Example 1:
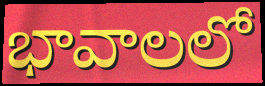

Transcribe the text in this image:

భావాలలో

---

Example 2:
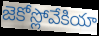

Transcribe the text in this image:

జెకోస్లోవేకియా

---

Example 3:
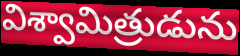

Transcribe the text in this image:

విశ్వామిత్రుడును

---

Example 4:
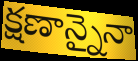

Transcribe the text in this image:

క్షణాన్నైనా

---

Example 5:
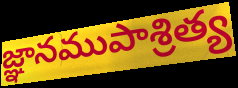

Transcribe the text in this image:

జ్ఞానముపాశ్రిత్య